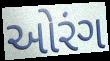
ઓરંગ